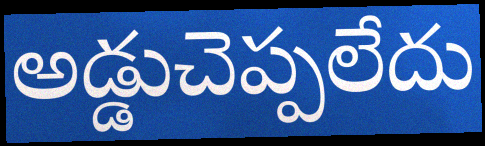
అడ్డుచెప్పలేదు